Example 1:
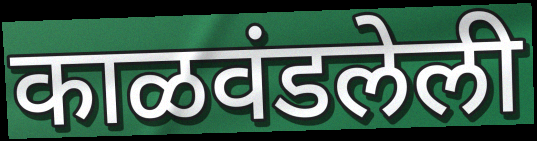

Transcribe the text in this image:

काळवंडलेली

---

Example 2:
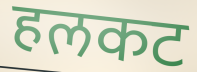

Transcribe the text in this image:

हलकट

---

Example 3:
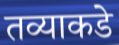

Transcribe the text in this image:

तव्याकडे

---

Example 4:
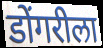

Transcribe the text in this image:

डोंगरीला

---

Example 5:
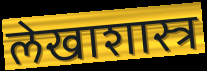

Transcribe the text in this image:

लेखाशास्त्र